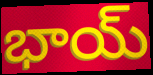
భాయ్